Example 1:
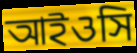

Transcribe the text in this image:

আইওসি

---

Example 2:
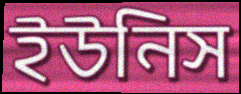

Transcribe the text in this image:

ইউনিস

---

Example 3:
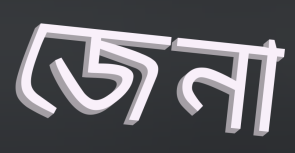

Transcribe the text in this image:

জেনা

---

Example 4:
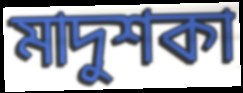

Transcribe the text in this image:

মাদুশকা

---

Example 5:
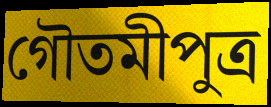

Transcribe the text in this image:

গৌতমীপুত্র